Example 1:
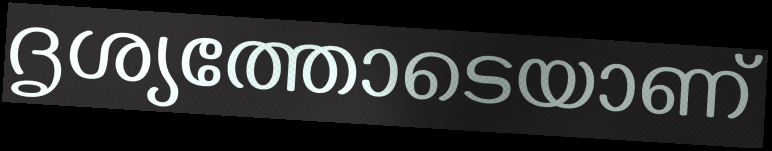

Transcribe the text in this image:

ദൃശ്യത്തോടെയാണ്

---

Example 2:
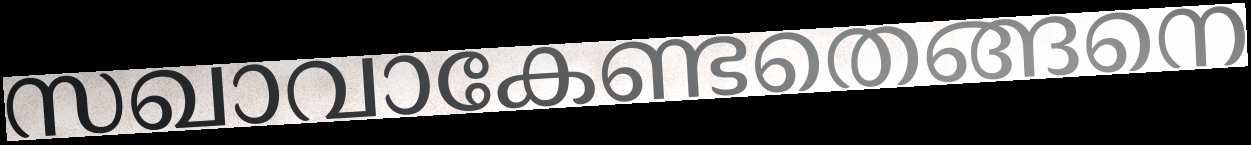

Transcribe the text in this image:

സഖാവാകേണ്ടതെങ്ങനെ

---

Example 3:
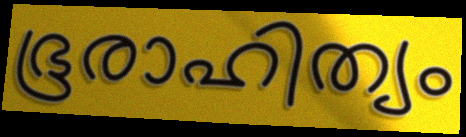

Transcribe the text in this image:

ഭൂരാഹിത്യം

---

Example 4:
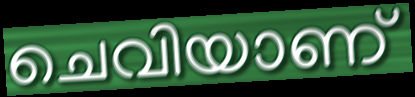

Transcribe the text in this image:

ചെവിയാണ്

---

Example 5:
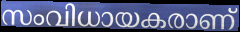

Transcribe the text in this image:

സംവിധായകരാണ്